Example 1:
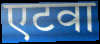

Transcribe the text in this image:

एटवा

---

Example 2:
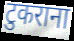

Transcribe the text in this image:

टुकराना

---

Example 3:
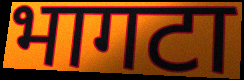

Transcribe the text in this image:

भागटा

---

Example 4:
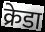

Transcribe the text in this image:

क्रेडा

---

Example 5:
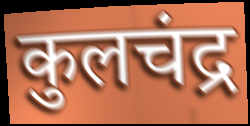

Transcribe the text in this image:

कुलचंद्र